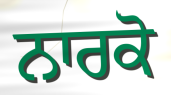
ਨਾਰਕੋ